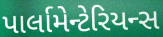
પાર્લામેન્ટેરિયન્સ